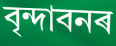
বৃন্দাবনৰ